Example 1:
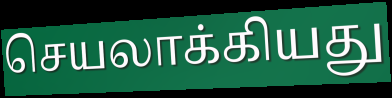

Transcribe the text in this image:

செயலாக்கியது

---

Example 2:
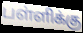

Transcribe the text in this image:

பள்ளிக்கு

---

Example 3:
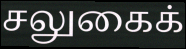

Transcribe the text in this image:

சலுகைக்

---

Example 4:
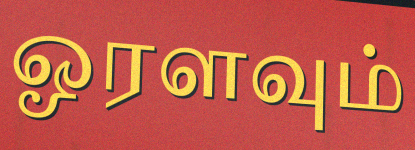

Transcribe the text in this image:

ஓரளவும்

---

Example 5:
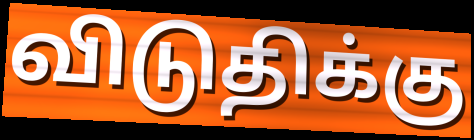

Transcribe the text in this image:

விடுதிக்கு